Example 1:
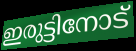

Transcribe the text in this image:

ഇരുട്ടിനോട്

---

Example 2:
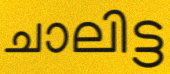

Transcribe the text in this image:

ചാലിട്ട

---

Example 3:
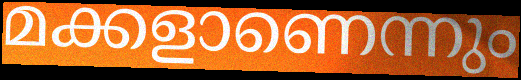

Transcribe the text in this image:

മക്കളാണെന്നും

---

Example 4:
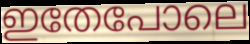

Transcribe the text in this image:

ഇതേപോലെ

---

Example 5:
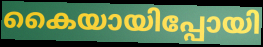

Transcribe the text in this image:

കൈയായിപ്പോയി